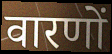
वारणों